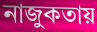
নাজুকতায়